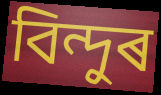
বিন্দুৰ